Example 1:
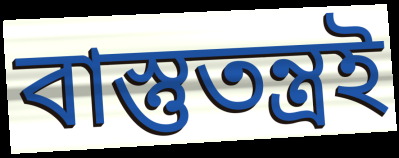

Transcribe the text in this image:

বাস্তুতন্ত্রই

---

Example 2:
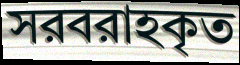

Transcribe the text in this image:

সরবরাহকৃত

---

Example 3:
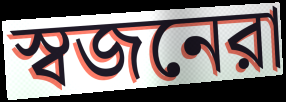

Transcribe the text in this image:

স্বজনেরা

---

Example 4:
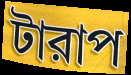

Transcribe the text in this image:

টারাপ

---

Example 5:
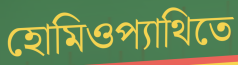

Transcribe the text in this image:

হোমিওপ্যাথিতে